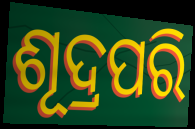
ଶୂଦ୍ରପରି